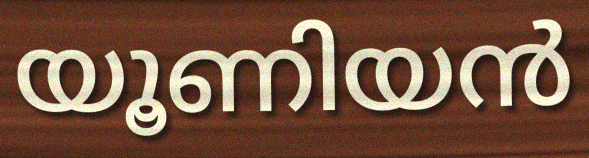
യൂണിയൻ